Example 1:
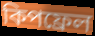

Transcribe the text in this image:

কিপফ্রেল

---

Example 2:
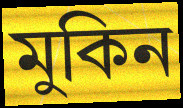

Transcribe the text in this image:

মুকিন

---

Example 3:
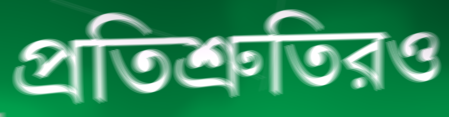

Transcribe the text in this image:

প্রতিশ্রুতিরও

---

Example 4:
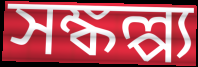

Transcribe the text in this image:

সঙ্কল্প্য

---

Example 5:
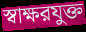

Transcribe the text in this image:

স্বাক্ষরযুক্ত